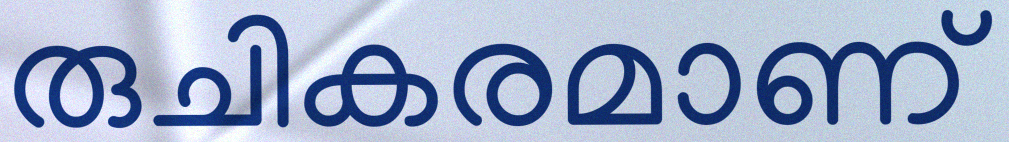
രുചികരമാണ്